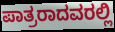
ಪಾತ್ರರಾದವರಲ್ಲಿ